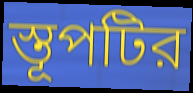
স্তূপটির